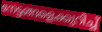
നേട്ടങ്ങളെക്കുറിച്ച്